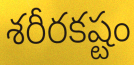
శరీరకష్టం